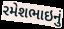
રમેશભાઇનું